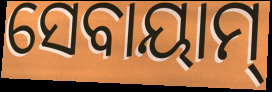
ସେବାୟାମ୍